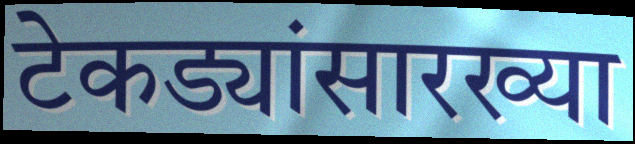
टेकड्यांसारख्या